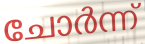
ചോർന്ന്